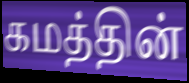
கமத்தின்